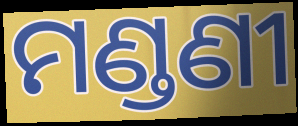
ମଣ୍ଡଣୀ